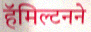
हॅमिल्टनने